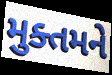
મુક્તમને